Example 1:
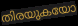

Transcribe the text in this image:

തിരയുകയോ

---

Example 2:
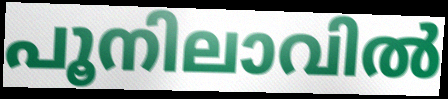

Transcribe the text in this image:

പൂനിലാവിൽ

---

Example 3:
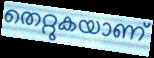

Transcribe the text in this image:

തെറ്റുകയാണ്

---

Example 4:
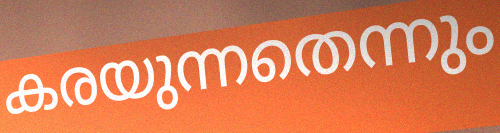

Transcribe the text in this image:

കരയുന്നതെന്നും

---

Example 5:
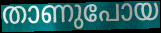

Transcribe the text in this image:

താണുപോയ